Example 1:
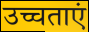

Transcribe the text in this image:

उच्चताएं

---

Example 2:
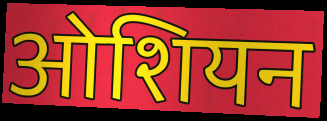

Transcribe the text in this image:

ओशियन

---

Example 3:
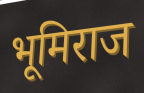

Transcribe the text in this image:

भूमिराज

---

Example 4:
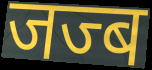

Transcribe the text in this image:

जज्ब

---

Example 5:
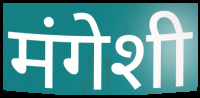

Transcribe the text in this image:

मंगेशी